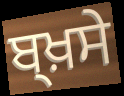
ਬ੍ਖ਼ਸੇ